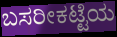
ಬಸರೀಕಟ್ಟೆಯ